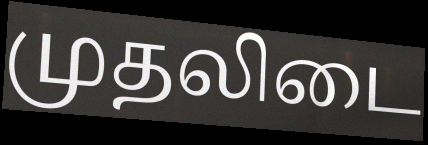
முதலிடை